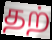
தற்